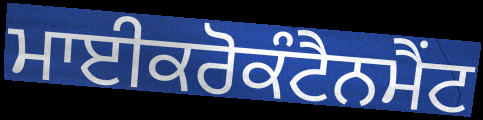
ਮਾਈਕਰੋਕੰਟੈਨਮੈਂਟ